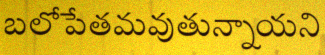
బలోపేతమవుతున్నాయని